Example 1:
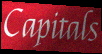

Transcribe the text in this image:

Capitals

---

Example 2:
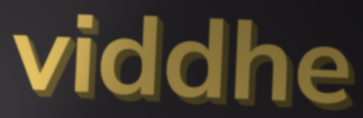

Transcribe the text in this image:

viddhe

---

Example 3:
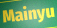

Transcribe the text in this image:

Mainyu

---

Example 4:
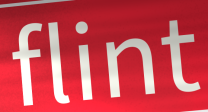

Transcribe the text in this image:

flint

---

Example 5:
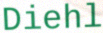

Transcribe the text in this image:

Diehl